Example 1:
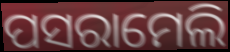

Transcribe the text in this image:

ପସରାମେଲି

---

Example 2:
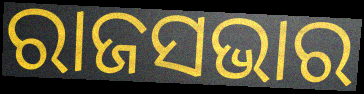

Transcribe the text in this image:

ରାଜସଭାର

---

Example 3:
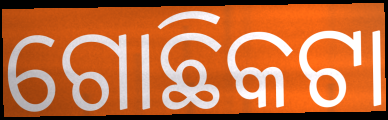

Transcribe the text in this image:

ଗୋଛିକଟା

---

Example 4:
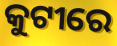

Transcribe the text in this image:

କୁଟୀରେ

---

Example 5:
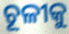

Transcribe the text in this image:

ଚୂଳୀକୁ